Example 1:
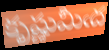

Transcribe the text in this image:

కృష్ణుమీఁద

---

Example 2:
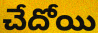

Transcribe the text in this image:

చేదోయి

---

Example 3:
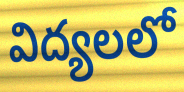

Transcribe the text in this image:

విద్యలలో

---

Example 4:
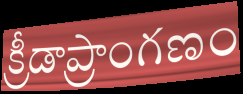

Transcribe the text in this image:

క్రీడాప్రాంగణం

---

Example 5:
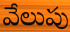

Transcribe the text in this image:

వేలుపు